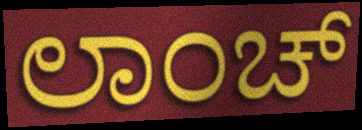
ಲಾಂಚ್